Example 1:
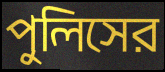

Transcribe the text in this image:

পুলিসের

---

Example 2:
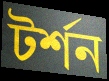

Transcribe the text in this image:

টর্শন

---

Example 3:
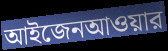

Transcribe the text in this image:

আইজেনআওয়ার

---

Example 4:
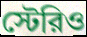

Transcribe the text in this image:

স্টেরিও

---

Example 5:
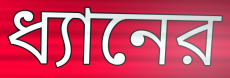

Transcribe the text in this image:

ধ্যানের